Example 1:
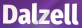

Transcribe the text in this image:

Dalzell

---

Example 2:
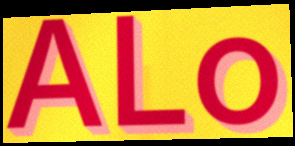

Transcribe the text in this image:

ALo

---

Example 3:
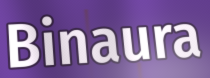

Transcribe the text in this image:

Binaura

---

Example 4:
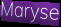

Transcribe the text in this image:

Maryse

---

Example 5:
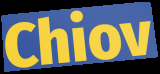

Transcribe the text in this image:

Chiov